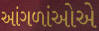
આંગળાંઓએ